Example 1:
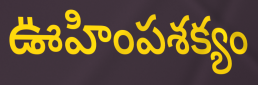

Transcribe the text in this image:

ఊహింపశక్యం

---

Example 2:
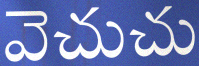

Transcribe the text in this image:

వెచుచు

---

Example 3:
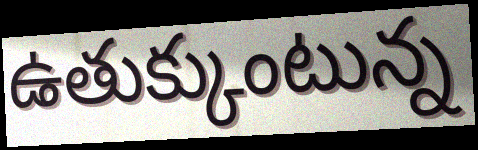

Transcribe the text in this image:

ఉతుక్కుంటున్న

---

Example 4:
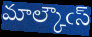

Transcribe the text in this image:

మాల్కౌఁస్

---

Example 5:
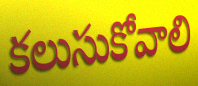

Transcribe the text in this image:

కలుసుకోవాలి